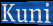
Kuni